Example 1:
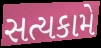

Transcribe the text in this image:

સત્યકામે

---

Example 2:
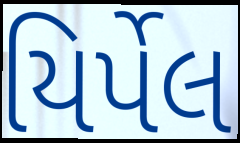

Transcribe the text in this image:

યિર્પેલ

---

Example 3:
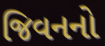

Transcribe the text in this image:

જિવનનો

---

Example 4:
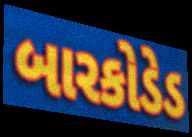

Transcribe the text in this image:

બારકોડેડ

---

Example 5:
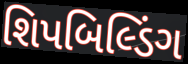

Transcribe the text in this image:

શિપબિલ્ડિંગ